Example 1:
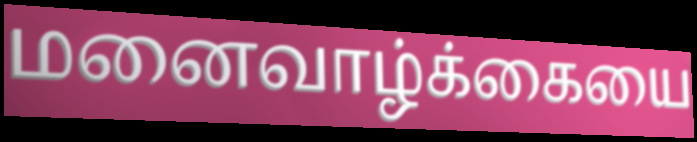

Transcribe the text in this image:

மனைவாழ்க்கையை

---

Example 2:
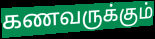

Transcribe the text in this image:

கணவருக்கும்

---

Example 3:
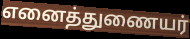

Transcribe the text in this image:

எனைத்துணையர்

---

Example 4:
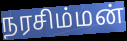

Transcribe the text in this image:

நரசிம்மன்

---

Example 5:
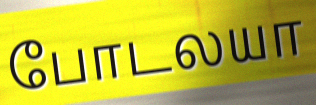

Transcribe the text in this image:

போடலயா